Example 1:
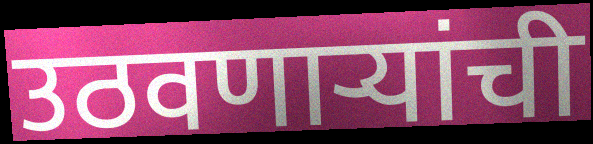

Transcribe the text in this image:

उठवणाऱ्यांची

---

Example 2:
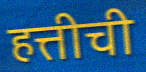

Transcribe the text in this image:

हत्तीची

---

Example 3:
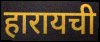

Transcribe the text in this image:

हारायची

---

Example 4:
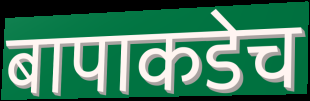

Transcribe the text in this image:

बापाकडेच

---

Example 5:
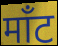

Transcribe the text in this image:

माँट